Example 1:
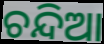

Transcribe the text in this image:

ଚନ୍ଦିଆ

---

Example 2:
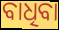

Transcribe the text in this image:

ବାଧିବା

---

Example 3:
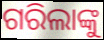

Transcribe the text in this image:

ଗରିଲାଙ୍କୁ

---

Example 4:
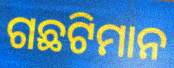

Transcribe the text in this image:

ଗଛଟିମାନ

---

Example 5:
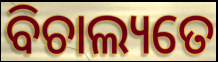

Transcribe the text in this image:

ବିଚାଲ୍ୟତେ